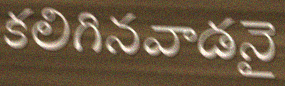
కలిగినవాడనై